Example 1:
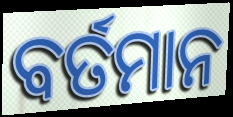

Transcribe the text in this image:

ବର୍ତମାନ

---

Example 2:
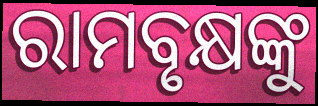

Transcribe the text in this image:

ରାମବୃକ୍ଷଙ୍କୁ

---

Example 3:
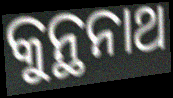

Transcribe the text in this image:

କୁନ୍ଥନାଥ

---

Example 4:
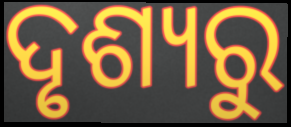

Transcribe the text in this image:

ଦୃଶ୍ୟରୁ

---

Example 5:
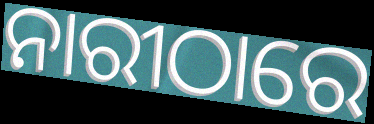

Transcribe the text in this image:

ନାରୀଠାରେ